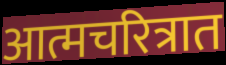
आत्मचरित्रात